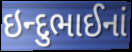
ઇન્દુભાઈનાં